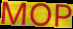
MOP